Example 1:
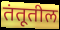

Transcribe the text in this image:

तंतूतील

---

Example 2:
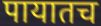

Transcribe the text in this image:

पायातच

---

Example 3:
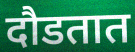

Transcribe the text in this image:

दौडतात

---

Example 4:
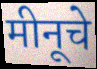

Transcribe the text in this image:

मीनूचे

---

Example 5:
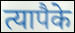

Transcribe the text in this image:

त्यापैके